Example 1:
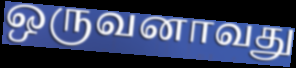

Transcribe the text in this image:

ஒருவனாவது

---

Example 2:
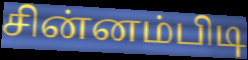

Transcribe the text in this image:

சின்னம்பிடி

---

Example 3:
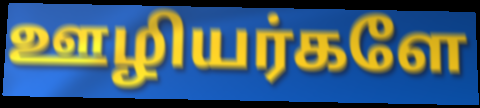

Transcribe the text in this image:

ஊழியர்களே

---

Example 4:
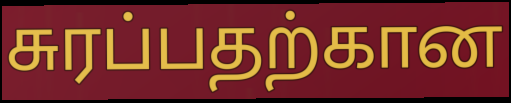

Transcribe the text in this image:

சுரப்பதற்கான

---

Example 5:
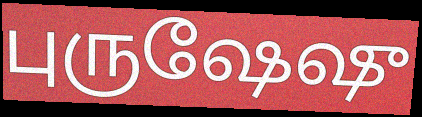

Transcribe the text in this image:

புருஷேஷு